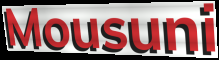
Mousuni